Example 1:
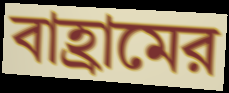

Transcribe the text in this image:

বাহ্রামের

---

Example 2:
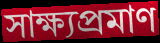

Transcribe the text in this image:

সাক্ষ্যপ্রমাণ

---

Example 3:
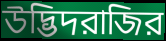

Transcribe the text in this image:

উদ্ভিদরাজির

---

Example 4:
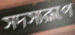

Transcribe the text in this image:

সদস্যরূপে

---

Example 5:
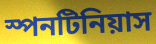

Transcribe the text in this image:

স্পনটিনিয়াস